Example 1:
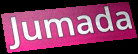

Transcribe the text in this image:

Jumada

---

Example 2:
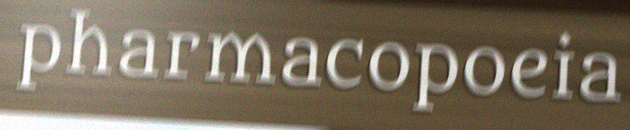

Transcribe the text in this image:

pharmacopoeia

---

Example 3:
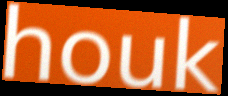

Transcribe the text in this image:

houk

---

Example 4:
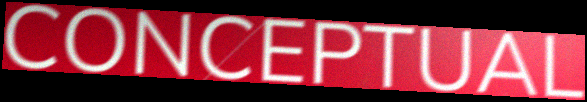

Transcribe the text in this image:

CONCEPTUAL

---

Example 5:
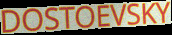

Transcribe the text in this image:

DOSTOEVSKY